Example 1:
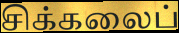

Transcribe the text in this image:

சிக்கலைப்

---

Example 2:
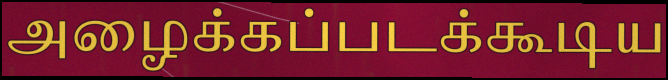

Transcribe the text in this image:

அழைக்கப்படக்கூடிய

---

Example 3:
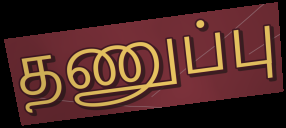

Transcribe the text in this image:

தணுப்பு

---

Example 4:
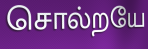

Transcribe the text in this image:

சொல்றயே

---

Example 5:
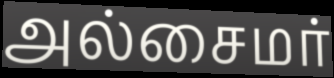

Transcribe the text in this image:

அல்சைமர்